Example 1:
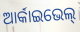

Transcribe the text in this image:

ଆର୍କାଇଭେଲ୍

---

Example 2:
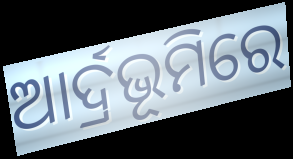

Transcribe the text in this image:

ଆର୍ଦ୍ରଭୂମିରେ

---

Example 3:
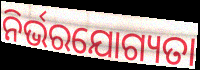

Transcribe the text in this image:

ନିର୍ଭରଯୋଗ୍ୟତା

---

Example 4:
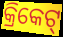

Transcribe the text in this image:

କ୍ରିକେଟ୍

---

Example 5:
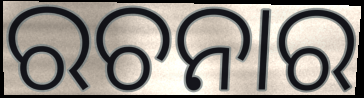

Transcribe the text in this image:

ରଚନାର